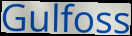
Gulfoss